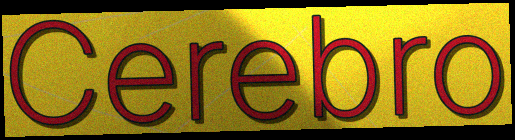
Cerebro